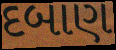
દબાણ